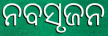
ନବସୃଜନ